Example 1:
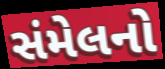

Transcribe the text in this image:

સંમેલનો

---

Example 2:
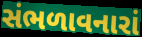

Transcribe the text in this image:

સંભળાવનારાં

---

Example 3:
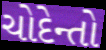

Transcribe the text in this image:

ચોદેન્તો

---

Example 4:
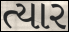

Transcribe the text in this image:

ત્‍યાર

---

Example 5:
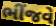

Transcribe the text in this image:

ભીંજવે